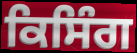
ਕਿਸਿੰਗ